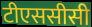
टीएससीसी